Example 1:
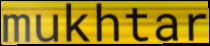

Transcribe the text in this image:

mukhtar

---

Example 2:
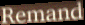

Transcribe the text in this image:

Remand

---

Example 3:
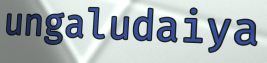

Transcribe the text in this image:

ungaludaiya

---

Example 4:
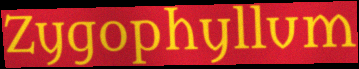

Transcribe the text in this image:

Zygophyllum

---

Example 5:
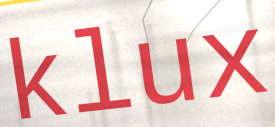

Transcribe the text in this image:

klux